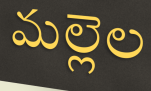
మల్లెల